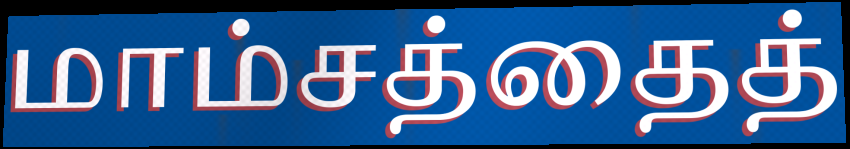
மாம்சத்தைத்